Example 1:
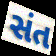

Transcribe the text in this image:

સંત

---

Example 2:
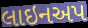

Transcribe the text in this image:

લાઇનઅપ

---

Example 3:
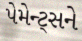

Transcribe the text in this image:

પેમેન્ટ્સને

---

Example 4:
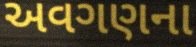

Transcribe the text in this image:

અવગણના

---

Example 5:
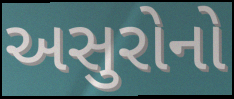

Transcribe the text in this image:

અસુરોનો